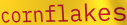
cornflakes